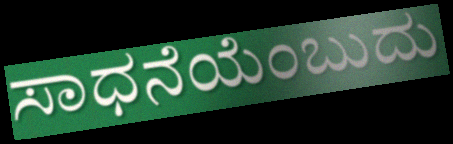
ಸಾಧನೆಯೆಂಬುದು